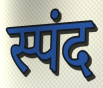
स्पंद